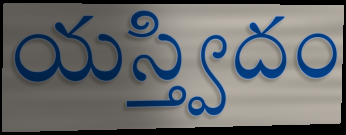
యస్త్విదం